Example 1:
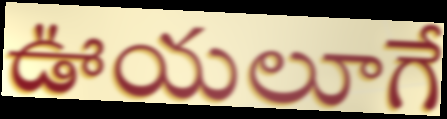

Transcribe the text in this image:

ఊయలూగే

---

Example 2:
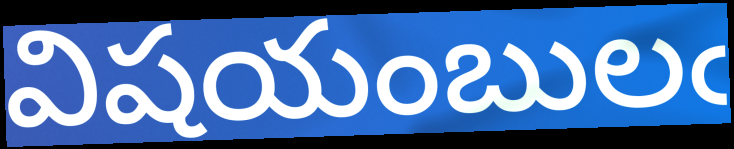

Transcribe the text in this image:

విషయంబులఁ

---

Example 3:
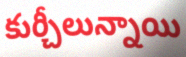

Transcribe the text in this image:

కుర్చీలున్నాయి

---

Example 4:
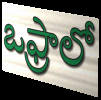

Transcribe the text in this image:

ఒఫ్రాలో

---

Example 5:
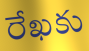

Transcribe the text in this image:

రేఖకు